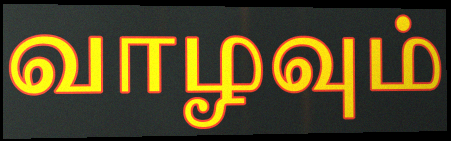
வாழவும்